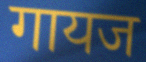
गायज